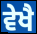
ਵੇਖੈ